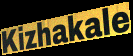
Kizhakale